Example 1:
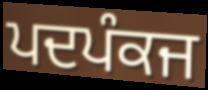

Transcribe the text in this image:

ਪਦਪੰਕਜ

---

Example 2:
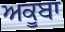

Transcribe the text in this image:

ਅਕੂਬਾ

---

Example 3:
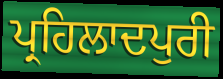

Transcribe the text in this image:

ਪ੍ਰਹਿਲਾਦਪੁਰੀ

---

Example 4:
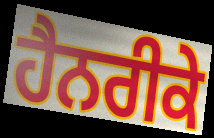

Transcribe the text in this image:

ਹੈਨਰੀਕੇ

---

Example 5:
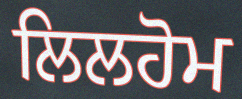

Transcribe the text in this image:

ਲਿਲਹੋਮ